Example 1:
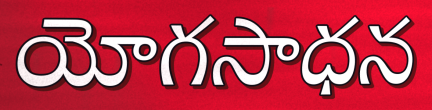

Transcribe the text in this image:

యోగసాధన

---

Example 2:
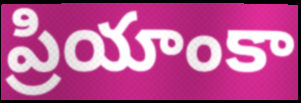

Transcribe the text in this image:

ప్రియాంకా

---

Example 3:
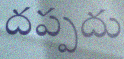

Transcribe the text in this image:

దప్పదు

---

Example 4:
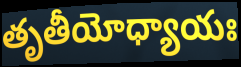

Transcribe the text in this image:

తృతీయోధ్యాయః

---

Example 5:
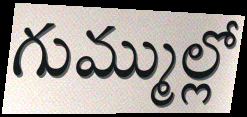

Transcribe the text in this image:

గుమ్ముల్లో